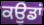
ਕਉਡਾਂ